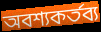
অবশ্যকর্তব্য